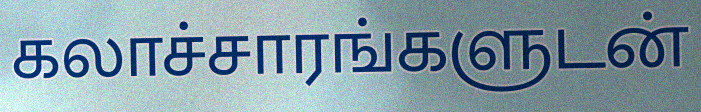
கலாச்சாரங்களுடன்